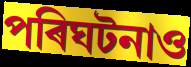
পৰিঘটনাও